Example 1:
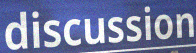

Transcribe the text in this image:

discussion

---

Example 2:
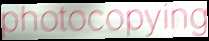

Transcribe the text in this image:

photocopying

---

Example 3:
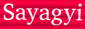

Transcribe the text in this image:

Sayagyi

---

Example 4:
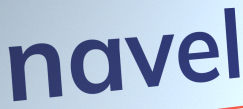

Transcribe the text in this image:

navel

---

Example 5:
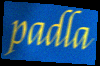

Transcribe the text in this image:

padla